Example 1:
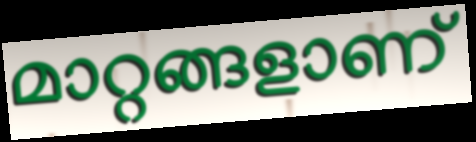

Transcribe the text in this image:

മാറ്റങ്ങളാണ്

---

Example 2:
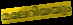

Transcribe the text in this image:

മലേറിയയും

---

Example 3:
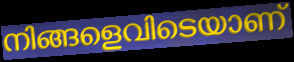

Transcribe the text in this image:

നിങ്ങളെവിടെയാണ്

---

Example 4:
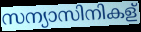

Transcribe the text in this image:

സന്യാസിനികള്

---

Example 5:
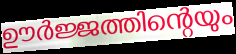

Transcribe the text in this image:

ഊർജ്ജത്തിന്റെയും